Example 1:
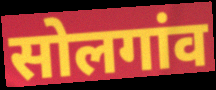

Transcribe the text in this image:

सोलगांव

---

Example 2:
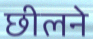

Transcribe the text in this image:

छीलने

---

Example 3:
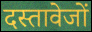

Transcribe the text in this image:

दस्तावेजों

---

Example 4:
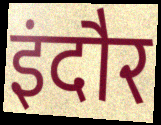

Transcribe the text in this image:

इंदौर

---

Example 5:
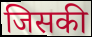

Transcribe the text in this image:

जिसकी